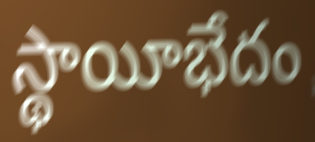
స్థాయీభేదం